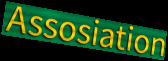
Assosiation